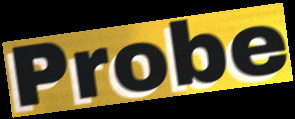
Probe